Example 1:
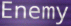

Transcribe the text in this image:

Enemy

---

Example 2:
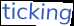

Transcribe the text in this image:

ticking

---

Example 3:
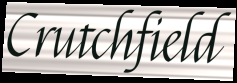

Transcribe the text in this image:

Crutchfield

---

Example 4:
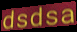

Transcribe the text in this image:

dsdsa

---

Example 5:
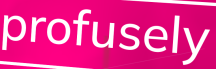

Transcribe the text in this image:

profusely